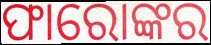
ଫାରୋଙ୍କର